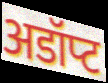
अडॉप्‍ट